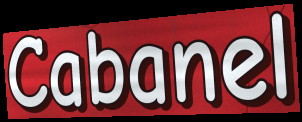
Cabanel